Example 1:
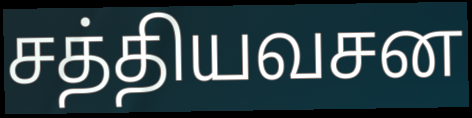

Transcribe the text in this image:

சத்தியவசன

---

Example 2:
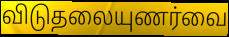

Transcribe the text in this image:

விடுதலையுணர்வை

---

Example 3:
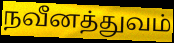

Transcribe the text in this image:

நவீனத்துவம்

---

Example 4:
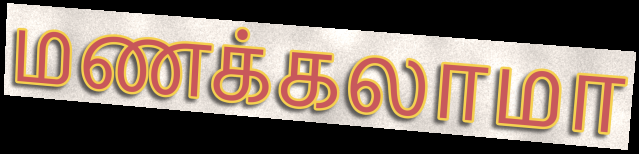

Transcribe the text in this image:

மணக்கலாமா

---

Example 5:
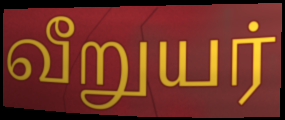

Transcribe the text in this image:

வீறுயர்